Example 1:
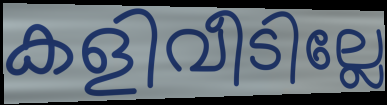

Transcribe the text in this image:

കളിവീടില്ലേ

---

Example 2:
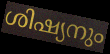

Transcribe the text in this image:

ശിഷ്യനും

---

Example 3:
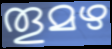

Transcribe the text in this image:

തൂമഴ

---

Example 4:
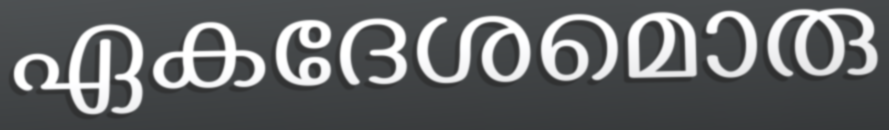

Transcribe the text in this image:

ഏകദേശമൊരു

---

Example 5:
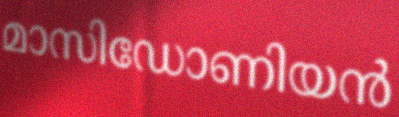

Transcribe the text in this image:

മാസിഡോണിയൻ